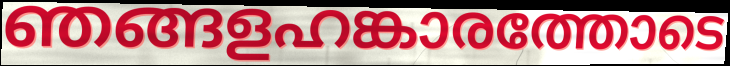
ഞങ്ങളഹങ്കാരത്തോടെ